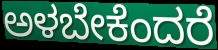
ಅಳಬೇಕೆಂದರೆ